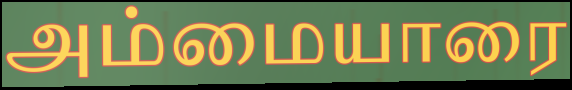
அம்மையாரை